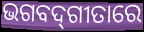
ଭଗବଦ୍‌ଗୀତାରେ